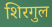
शिरगुल